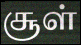
சூள்